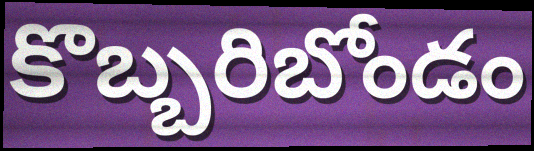
కొబ్బరిబోండం